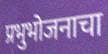
प्रभुभोजनाचा